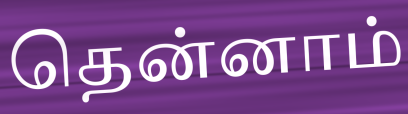
தென்னாம்